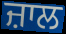
ਜ਼ਾਲ